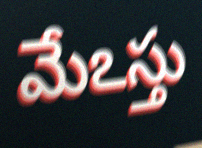
మేఽస్తు